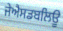
ਜੇਐਸਡਬਲਿਊ